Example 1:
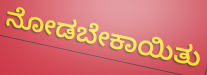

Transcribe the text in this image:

ನೋಡಬೇಕಾಯಿತು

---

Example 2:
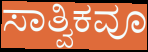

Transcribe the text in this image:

ಸಾತ್ವಿಕವೂ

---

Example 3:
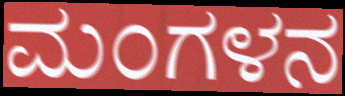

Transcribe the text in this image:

ಮಂಗಳನ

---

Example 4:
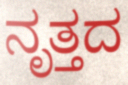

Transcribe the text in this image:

ನೃತ್ತದ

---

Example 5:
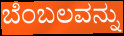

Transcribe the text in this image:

ಬೆಂಬಲವನ್ನು